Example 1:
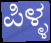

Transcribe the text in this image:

ಪಿಳ್ಳ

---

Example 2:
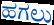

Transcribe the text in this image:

ಹಗಲು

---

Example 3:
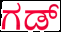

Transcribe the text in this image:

ಗಡ್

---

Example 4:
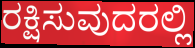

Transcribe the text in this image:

ರಕ್ಷಿಸುವುದರಲ್ಲಿ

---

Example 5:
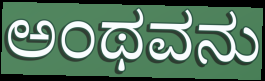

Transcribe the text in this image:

ಅಂಥವನು